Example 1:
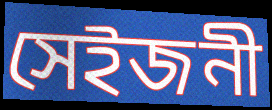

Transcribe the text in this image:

সেইজনী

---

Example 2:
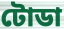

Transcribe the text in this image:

টোডা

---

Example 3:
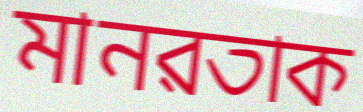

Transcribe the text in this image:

মানৱতাক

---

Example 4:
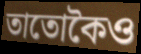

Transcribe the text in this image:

তাতোকৈও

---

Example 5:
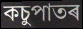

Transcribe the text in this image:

কচুপাতৰ